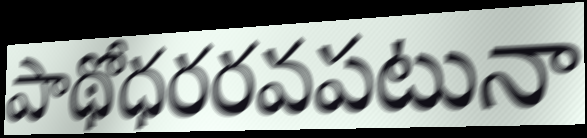
పాథోధరరవపటునా